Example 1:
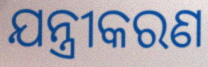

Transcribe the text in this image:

ଯନ୍ତ୍ରୀକରଣ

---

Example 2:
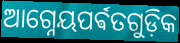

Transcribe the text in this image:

ଆଗ୍ନେୟପର୍ଵତଗୁଡ଼ିକ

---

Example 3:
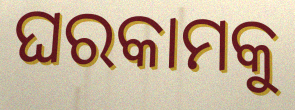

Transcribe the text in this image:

ଘରକାମକୁ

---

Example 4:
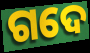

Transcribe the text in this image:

ଗଦେ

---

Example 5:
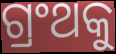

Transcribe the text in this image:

ଗ୍ରଂଥକୁ